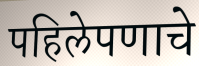
पहिलेपणाचे